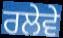
ਰਲੇਵੇ